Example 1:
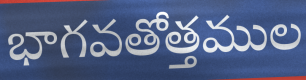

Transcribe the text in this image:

భాగవతోత్తముల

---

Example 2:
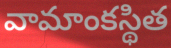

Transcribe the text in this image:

వామాంకస్థిత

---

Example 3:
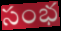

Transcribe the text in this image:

సంభ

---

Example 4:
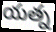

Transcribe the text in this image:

యత్న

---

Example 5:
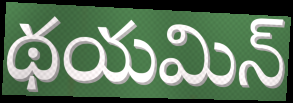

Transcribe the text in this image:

థయమిన్